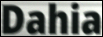
Dahia